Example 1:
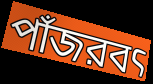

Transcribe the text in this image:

পাঁজরবৎ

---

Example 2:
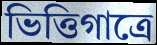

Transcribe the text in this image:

ভিত্তিগাত্রে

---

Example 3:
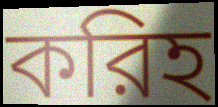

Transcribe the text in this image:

করিহ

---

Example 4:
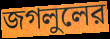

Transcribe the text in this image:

জগলুলের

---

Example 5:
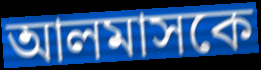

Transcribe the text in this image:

আলমাসকে